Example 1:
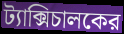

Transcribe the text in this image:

ট্যাক্সিচালকের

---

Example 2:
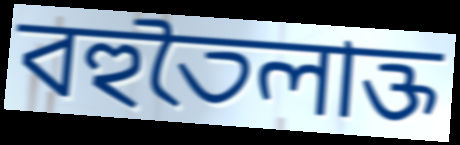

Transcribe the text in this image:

বহুতৈলাক্ত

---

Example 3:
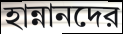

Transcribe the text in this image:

হান্নানদের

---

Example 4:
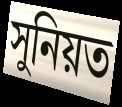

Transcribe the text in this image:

সুনিয়ত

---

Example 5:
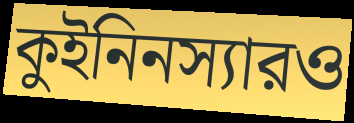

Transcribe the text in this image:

কুইনিনস্যারও